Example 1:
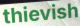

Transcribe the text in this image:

thievish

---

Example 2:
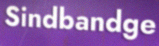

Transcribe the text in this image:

Sindbandge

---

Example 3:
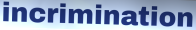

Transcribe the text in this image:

incrimination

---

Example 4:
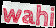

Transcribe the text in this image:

wahi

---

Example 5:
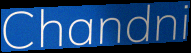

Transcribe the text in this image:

Chandni